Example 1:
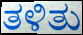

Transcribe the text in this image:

ತಳಿತು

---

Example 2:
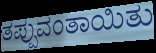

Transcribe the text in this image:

ತಪ್ಪುವಂತಾಯಿತು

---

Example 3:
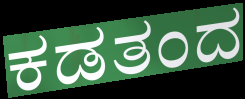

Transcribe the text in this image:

ಕಡತಂದ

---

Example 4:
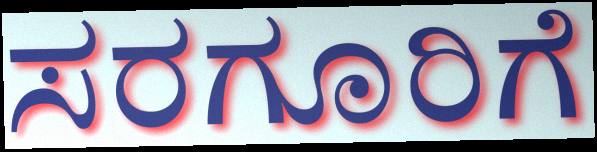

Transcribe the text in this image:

ಸರಗೂರಿಗೆ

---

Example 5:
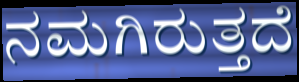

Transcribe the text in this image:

ನಮಗಿರುತ್ತದೆ